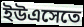
ইউএসেতে